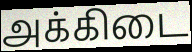
அக்கிடை